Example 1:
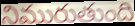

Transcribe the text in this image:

నిమురుతుంది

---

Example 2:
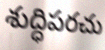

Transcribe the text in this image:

శుద్ధిపరచు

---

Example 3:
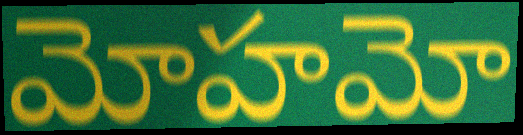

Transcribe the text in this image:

మోహమో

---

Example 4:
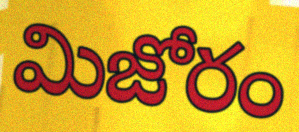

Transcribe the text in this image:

మిజోరం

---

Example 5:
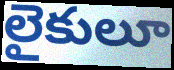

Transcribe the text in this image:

లైకులూ